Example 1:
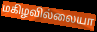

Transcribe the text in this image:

மகிழவில்லையா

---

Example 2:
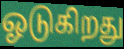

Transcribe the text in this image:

ஓடுகிறது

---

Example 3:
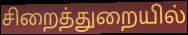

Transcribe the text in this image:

சிறைத்துறையில்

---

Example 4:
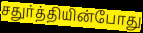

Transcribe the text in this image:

சதுர்த்தியின்போது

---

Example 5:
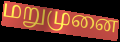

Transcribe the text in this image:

மறுமுனை